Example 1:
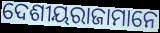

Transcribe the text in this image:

ଦେଶୀୟରାଜାମାନେ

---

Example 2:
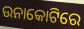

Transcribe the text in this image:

ଉନାକୋଟିରେ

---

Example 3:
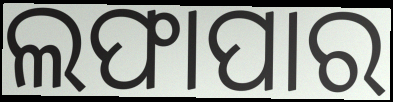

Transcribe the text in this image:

ଲଫାପାର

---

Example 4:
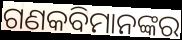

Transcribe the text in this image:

ଗଣକବିମାନଙ୍କର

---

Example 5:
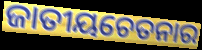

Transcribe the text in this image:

ଜାତୀୟଚେତନାର